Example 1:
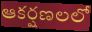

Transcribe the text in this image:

ఆకర్షణలలో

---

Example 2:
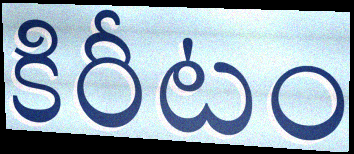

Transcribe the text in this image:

కిరీటం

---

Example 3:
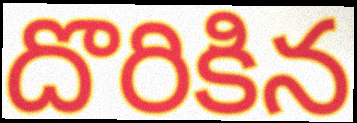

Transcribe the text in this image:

దొరికిన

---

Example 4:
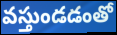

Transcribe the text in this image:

వస్తుండడంతో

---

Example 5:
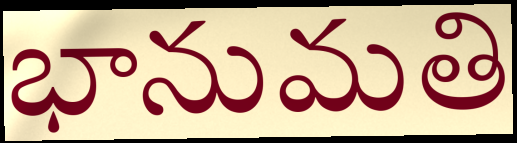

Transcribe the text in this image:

భానుమతి